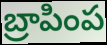
బ్రాపింప